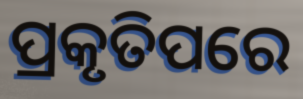
ପ୍ରକୃତିପରେ